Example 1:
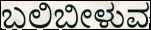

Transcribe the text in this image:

ಬಲಿಬೀಳುವ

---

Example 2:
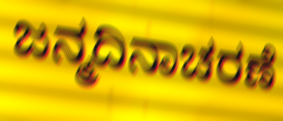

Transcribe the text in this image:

ಜನ್ಮದಿನಾಚರಣೆ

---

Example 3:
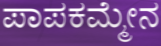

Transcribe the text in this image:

ಪಾಪಕಮ್ಮೇನ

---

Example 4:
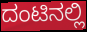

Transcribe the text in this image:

ದಂಟಿನಲ್ಲಿ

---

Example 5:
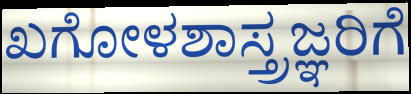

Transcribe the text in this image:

ಖಗೋಳಶಾಸ್ತ್ರಜ್ಞರಿಗೆ